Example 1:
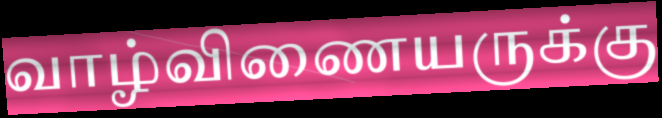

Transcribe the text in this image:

வாழ்விணையருக்கு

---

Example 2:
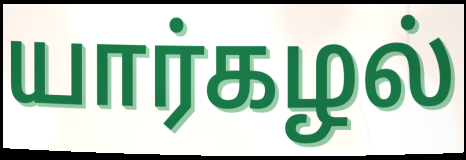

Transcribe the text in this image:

யார்கழல்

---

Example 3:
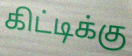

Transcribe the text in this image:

கிட்டிக்கு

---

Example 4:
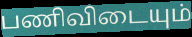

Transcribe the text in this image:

பணிவிடையும்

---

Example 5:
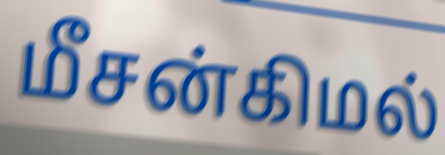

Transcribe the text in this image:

மீசன்கிமல்